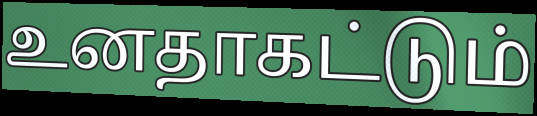
உனதாகட்டும்